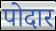
पोदार